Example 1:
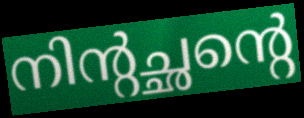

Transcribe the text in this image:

നിന്റച്ഛന്റെ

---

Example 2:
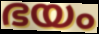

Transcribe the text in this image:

ഭയം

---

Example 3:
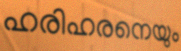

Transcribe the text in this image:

ഹരിഹരനെയും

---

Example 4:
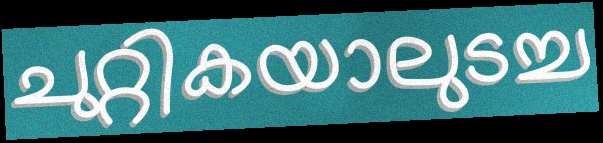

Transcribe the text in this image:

ചുറ്റികയാലുടച്ച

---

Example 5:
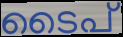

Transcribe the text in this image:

ടൈപ്